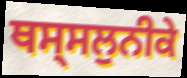
ਥਸ੍ਸਲੁਨੀਕੇ